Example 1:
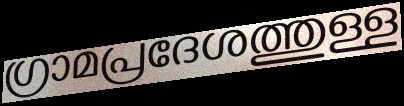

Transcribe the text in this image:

ഗ്രാമപ്രദേശത്തുള്ള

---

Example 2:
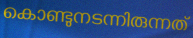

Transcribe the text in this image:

കൊണ്ടുനടന്നിരുന്നത്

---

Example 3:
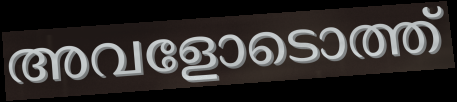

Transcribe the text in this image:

അവളോടൊത്ത്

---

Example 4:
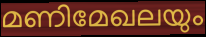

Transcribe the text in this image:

മണിമേഖലയും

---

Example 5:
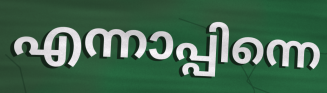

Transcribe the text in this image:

എന്നാപ്പിന്നെ